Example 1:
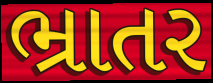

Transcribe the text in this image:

ભ્રાતર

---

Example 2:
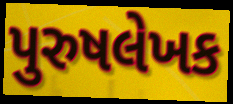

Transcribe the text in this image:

પુરુષલેખક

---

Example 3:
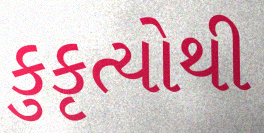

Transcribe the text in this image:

કુકૃત્યોથી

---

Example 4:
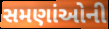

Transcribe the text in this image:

સમણાંઓની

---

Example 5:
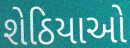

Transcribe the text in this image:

શેઠિયાઓ